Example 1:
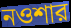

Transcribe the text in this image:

নওশার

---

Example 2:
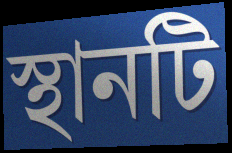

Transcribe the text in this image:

স্থানটি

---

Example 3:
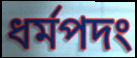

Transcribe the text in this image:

ধর্মপদং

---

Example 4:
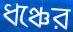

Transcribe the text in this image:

ধঞ্চের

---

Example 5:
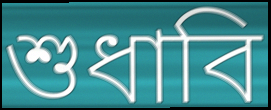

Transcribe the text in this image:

শুধাবি